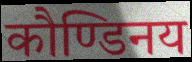
कौण्डिनय